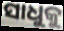
ସାଧୁକୁ